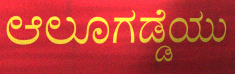
ಆಲೂಗಡ್ಡೆಯು